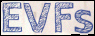
EVFs